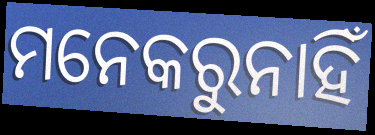
ମନେକରୁନାହିଁ